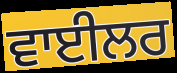
ਵਾਈਲਰ